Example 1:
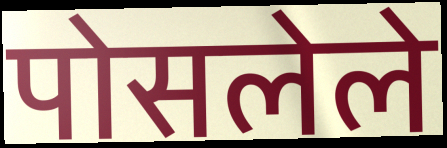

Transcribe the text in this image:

पोसलेले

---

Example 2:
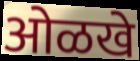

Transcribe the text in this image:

ओळखे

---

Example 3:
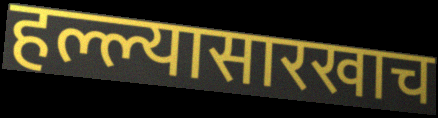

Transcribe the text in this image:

हल्ल्यासारखाच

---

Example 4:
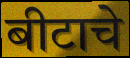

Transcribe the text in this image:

बीटाचे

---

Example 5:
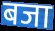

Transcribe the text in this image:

बजा